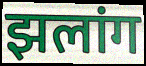
झलांग